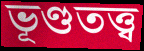
ভূণ্ডতত্ত্ব